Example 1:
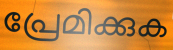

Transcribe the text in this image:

പ്രേമിക്കുക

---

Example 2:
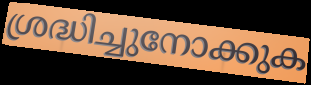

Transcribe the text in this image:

ശ്രദ്ധിച്ചുനോക്കുക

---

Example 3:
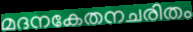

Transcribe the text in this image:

മദനകേതനചരിതം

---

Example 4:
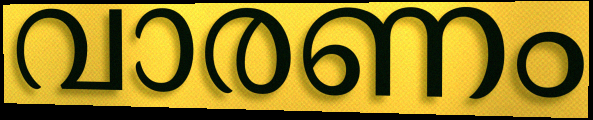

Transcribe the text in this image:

വാരണം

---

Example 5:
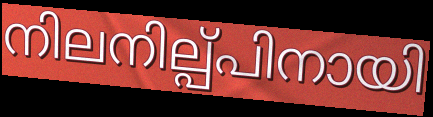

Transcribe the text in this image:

നിലനില്പ്പിനായി